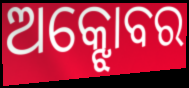
ଅକ୍ଝୋବର